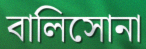
বালিসোনা